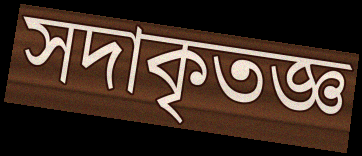
সদাকৃতজ্ঞ